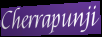
Cherrapunji